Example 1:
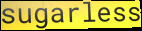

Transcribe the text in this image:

sugarless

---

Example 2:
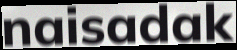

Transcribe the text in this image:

naisadak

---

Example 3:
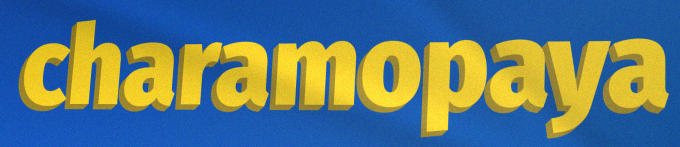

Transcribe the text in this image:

charamopaya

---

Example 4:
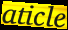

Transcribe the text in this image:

aticle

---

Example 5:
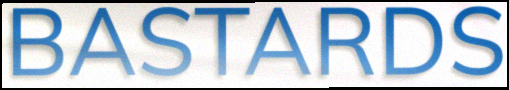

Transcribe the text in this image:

BASTARDS